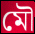
মৌ